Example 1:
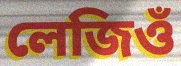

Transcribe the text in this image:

লেজিওঁ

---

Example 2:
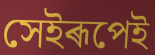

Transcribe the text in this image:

সেইৰূপেই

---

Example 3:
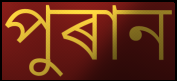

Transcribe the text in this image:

পুৰান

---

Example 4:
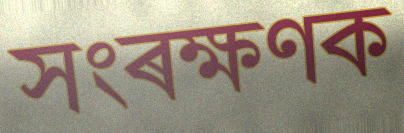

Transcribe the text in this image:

সংৰক্ষণক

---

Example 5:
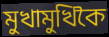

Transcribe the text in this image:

মুখামুখিকৈ